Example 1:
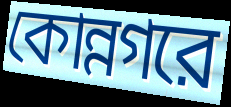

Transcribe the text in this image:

কোন্নগরে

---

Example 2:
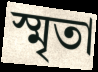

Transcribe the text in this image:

স্মৃতা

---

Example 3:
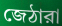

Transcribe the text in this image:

জেঠারা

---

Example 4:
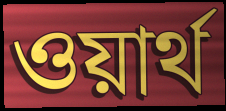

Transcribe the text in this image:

ওয়ার্থ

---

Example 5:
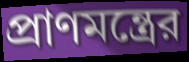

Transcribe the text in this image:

প্রাণমন্ত্রের